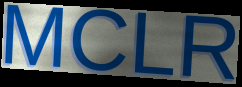
MCLR